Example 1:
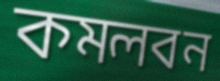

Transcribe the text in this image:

কমলবন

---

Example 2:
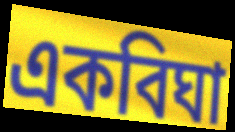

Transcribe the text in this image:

একবিঘা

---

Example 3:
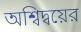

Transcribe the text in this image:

অশ্বিদ্বয়ের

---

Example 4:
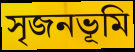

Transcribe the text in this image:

সৃজনভূমি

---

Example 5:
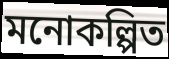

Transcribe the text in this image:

মনোকল্পিত